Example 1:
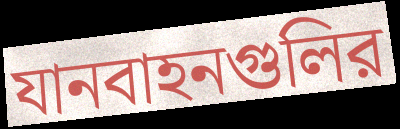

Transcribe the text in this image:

যানবাহনগুলির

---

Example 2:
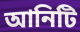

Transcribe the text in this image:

আনিটি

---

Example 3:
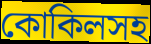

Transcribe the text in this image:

কোকিলসহ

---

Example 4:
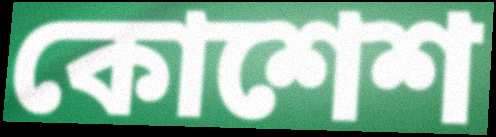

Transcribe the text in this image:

কোশেশ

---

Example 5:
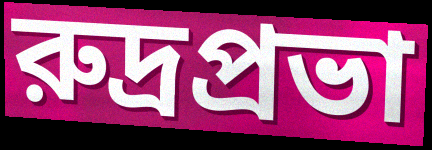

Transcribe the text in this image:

রুদ্রপ্রভা